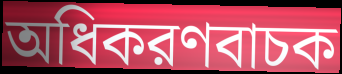
অধিকরণবাচক